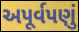
અપૂર્વપણું